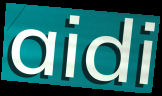
aidi